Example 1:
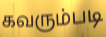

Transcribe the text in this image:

கவரும்படி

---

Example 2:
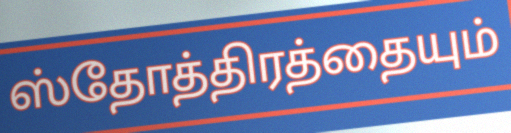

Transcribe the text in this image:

ஸ்தோத்திரத்தையும்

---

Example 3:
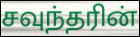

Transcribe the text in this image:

சவுந்தரின்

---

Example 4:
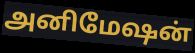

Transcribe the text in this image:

அனிமேஷன்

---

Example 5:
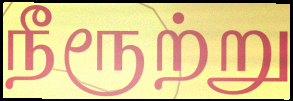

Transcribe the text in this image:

நீரூற்று